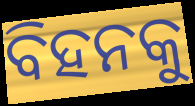
ବିହନକୁ